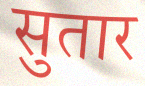
सुतार